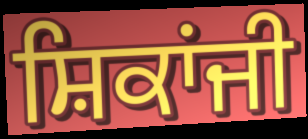
ਸ਼ਿਕਾਂਜੀ